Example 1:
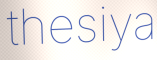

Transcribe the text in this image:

thesiya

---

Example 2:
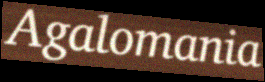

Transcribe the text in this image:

Agalomania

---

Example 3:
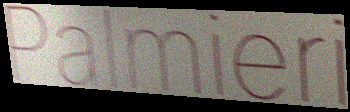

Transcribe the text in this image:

Palmieri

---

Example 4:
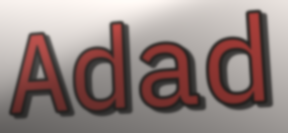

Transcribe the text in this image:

Adad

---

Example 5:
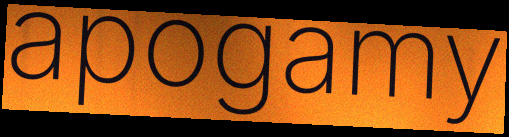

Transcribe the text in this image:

apogamy